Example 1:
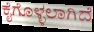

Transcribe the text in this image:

ಕೈಗೊಳ್ಳಲಾಗಿದೆ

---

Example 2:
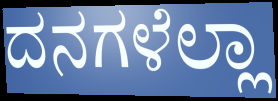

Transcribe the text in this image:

ದನಗಳೆಲ್ಲಾ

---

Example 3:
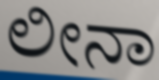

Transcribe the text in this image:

ಲೀನಾ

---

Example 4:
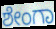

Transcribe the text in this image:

ಶೇಂಗಾ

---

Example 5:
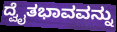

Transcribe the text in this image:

ದ್ವೈತಭಾವವನ್ನು